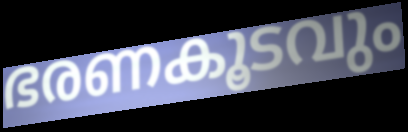
ഭരണകൂടവും